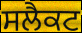
ਸਲੈਕਟ